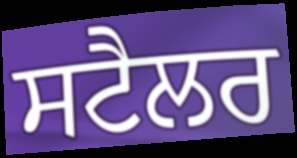
ਸਟੈਲਰ